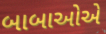
બાબાઓએ